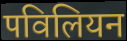
पविलियन